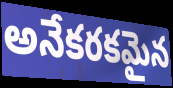
అనేకరకమైన